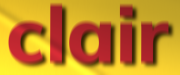
clair